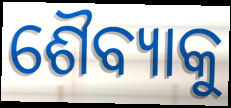
ଶୈବ୍ୟାକୁ